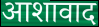
आशावाद